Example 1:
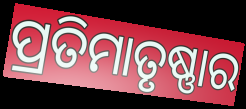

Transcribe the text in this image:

ପ୍ରତିମାତୃଷ୍ଣାର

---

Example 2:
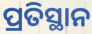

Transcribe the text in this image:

ପ୍ରତିସ୍ଥାନ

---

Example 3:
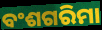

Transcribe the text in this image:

ବଂଶଗରିମା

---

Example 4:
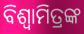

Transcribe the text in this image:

ବିଶ୍ବାମିତ୍ରଙ୍କ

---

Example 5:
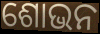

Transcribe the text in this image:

ଶୋଭନ